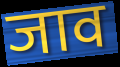
जाव